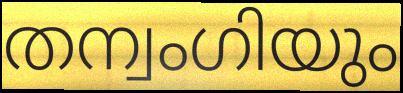
തന്വംഗിയും